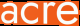
acre